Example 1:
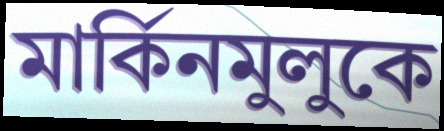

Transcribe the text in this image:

মার্কিনমুলুকে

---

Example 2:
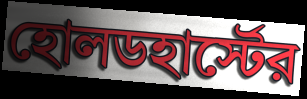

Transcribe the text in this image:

হোলডহার্স্টের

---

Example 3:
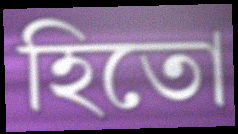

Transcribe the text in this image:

হিতো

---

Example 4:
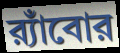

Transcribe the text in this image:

র‍্যাঁবোর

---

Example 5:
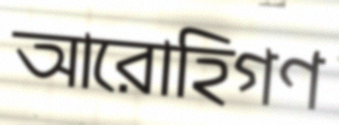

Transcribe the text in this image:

আরোহিগণ